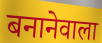
बनानेवाला